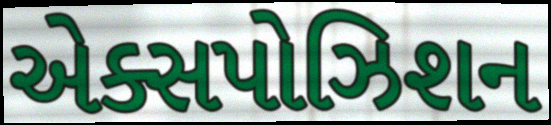
એક્સપોઝિશન